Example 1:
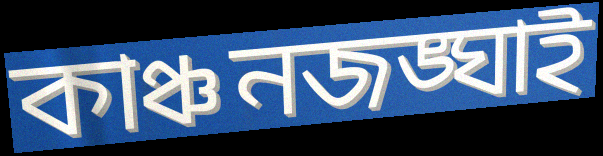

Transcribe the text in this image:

কাঞ্চনজঙ্ঘাই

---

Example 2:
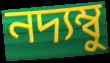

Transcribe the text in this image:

নদ্যম্বু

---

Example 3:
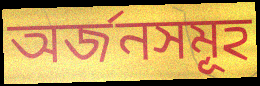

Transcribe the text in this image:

অর্জনসমূহ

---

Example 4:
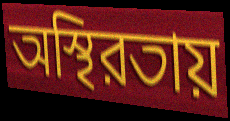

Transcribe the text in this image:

অস্থিরতায়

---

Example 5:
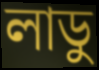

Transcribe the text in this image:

লাডু